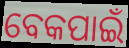
ବେକପାଇଁ